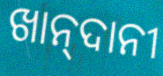
ଖାନ୍‍ଦାନୀ